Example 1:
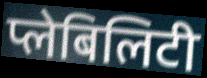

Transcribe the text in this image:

प्लेबिलिटी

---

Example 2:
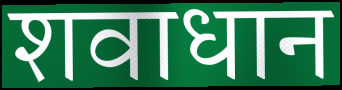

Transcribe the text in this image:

शवाधान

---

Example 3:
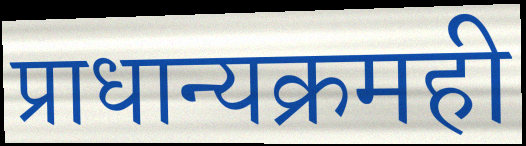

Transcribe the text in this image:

प्राधान्यक्रमही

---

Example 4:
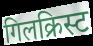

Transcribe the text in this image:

गिलक्रिस्‍ट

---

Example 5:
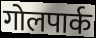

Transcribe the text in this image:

गोलपार्क